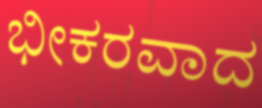
ಭೀಕರವಾದ